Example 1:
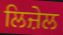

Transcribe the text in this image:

ਲਿਜ਼ੇਲ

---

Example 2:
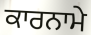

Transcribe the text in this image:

ਕਾਰਨਾਮੇ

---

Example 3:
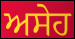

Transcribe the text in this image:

ਅਸੇਹ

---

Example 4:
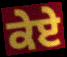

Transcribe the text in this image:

ਕੇਏ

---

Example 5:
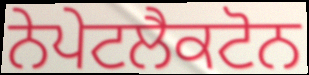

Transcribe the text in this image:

ਨੇਪੇਟਲੈਕਟੋਨ